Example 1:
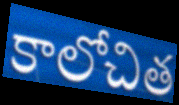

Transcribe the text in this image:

కాలోచిత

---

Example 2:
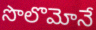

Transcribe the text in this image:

సొలొమోనే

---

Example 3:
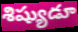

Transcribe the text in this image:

శిష్యుడూ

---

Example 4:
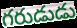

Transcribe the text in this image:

గరుడుడు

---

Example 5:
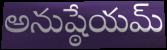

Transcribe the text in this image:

అనుష్ఠేయమ్